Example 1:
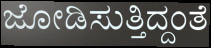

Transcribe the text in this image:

ಜೋಡಿಸುತ್ತಿದ್ದಂತೆ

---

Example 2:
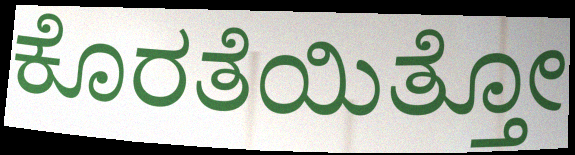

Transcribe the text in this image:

ಕೊರತೆಯಿತ್ತೋ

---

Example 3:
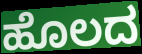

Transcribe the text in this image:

ಹೊಲದ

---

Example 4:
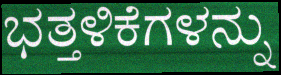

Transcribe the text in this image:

ಭತ್ತಳಿಕೆಗಳನ್ನು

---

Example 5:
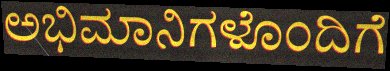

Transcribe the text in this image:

ಅಭಿಮಾನಿಗಳೊಂದಿಗೆ